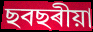
ছবছৰীয়া